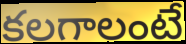
కలగాలంటే